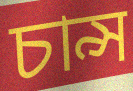
চান্স